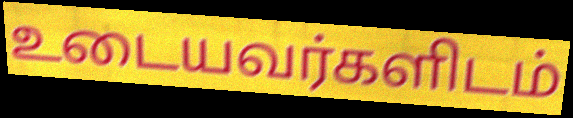
உடையவர்களிடம்